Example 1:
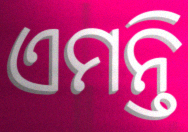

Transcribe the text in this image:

ଏମନ୍ତି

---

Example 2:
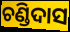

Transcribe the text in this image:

ଚଣ୍ଡିଦାସ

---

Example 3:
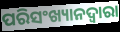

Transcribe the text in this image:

ପରିସଂଖ୍ୟାନଦ୍ଵାରା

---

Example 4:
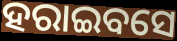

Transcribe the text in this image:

ହରାଇବସେ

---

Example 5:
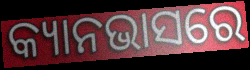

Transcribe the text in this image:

କ୍ୟାନଭାସରେ